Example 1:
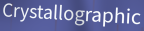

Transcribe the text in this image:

Crystallographic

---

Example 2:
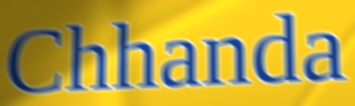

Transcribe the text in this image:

Chhanda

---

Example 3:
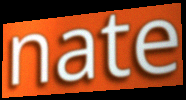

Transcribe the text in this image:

nate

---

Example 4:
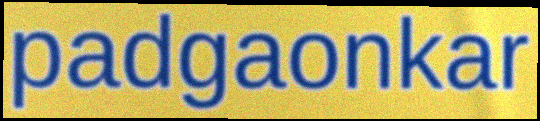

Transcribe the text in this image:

padgaonkar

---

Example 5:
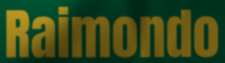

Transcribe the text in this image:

Raimondo